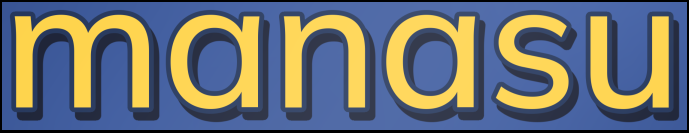
manasu